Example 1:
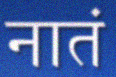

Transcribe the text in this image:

नातं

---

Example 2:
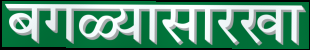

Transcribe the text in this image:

बगळ्यासारखा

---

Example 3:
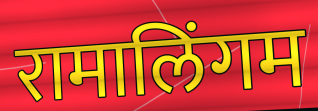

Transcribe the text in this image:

रामालिंगम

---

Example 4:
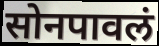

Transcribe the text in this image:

सोनपावलं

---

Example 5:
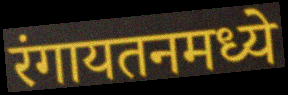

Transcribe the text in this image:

रंगायतनमध्ये